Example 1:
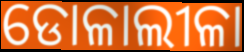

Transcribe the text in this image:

ଡୋଳାଲୀଳା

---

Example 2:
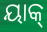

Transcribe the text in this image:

ୟାକ୍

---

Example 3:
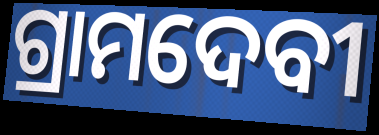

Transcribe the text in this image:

ଗ୍ରାମଦେବୀ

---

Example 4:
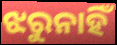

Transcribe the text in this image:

ଝରୁନାହିଁ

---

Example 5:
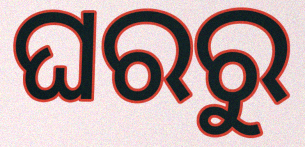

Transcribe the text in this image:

ଘରରୁ